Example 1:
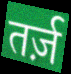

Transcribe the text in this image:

तर्ज़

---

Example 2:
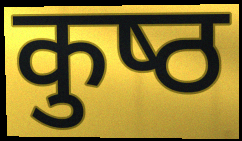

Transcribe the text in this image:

कुष्‍ठ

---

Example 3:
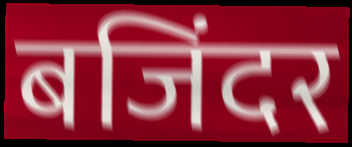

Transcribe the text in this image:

बजिंदर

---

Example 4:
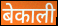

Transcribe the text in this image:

बेकाली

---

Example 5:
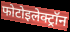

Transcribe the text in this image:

फोटोइलेक्ट्रॉन